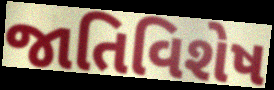
જાતિવિશેષ